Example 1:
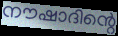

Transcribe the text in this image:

നൗഷാദിന്റെ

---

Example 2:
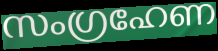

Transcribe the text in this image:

സംഗ്രഹേണ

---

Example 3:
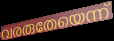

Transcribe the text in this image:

വരരുതേയെന്ന്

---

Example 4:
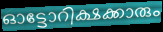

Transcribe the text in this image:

ഓട്ടോറിക്ഷക്കാരും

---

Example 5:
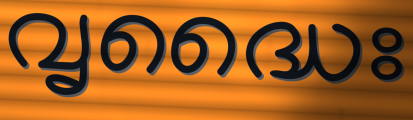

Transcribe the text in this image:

വൃദ്ധൈഃ